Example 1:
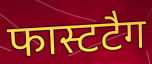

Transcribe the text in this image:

फास्टटैग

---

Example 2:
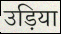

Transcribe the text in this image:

उड़िया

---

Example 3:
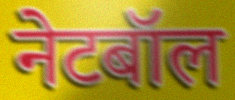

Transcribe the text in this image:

नेटबॉल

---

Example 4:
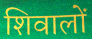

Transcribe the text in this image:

शिवालों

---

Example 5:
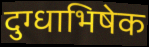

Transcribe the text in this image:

दुग्धाभिषेक